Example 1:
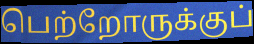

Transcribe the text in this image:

பெற்றோருக்குப்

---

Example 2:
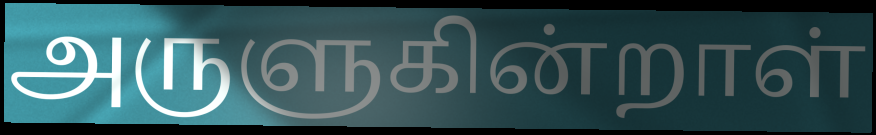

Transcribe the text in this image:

அருளுகின்றாள்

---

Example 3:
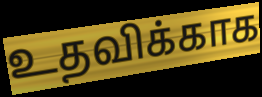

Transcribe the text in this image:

உதவிக்காக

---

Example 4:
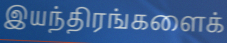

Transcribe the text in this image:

இயந்திரங்களைக்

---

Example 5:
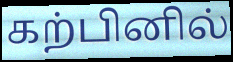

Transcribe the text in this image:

கற்பினில்